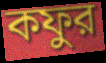
কফুর